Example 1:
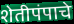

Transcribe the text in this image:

शेतीपंपाचे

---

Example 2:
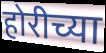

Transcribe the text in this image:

होरीच्या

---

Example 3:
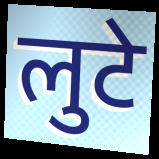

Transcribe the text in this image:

लुटे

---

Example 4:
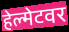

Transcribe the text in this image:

हेल्मेटवर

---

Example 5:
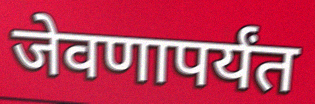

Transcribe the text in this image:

जेवणापर्यंत